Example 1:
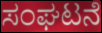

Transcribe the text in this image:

ಸಂಘಟನೆ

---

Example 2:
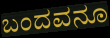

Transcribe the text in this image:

ಬಂದವನೂ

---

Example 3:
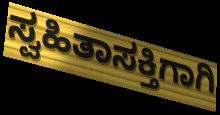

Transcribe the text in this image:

ಸ್ವಹಿತಾಸಕ್ತಿಗಾಗಿ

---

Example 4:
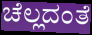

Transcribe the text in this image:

ಚೆಲ್ಲದಂತೆ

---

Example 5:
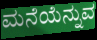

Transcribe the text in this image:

ಮನೆಯೆನ್ನುವ